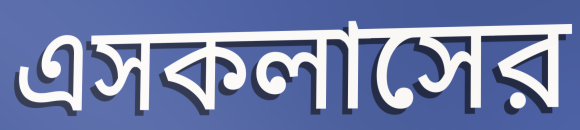
এসকলাসের